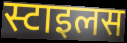
स्टाइलस